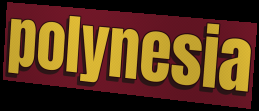
polynesia